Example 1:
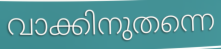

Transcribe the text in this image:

വാക്കിനുതന്നെ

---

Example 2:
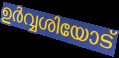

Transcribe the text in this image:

ഉർവ്വശിയോട്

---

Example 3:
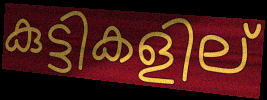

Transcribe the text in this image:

കുട്ടികളില്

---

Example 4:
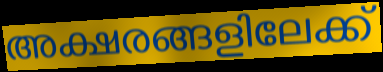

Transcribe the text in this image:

അക്ഷരങ്ങളിലേക്ക്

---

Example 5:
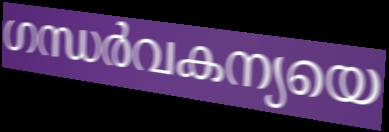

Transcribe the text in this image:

ഗന്ധർവകന്യയെ